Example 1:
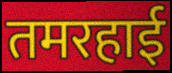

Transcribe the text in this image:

तमरहाई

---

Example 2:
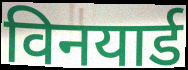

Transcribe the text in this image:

विनयार्ड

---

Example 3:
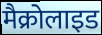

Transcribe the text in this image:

मैक्रोलाइड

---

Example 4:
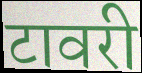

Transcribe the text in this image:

टावरी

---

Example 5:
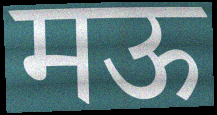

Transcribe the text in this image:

मऊ